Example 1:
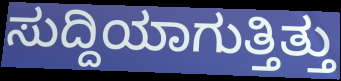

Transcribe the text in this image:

ಸುದ್ದಿಯಾಗುತ್ತಿತ್ತು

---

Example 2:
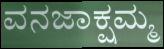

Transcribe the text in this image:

ವನಜಾಕ್ಷಮ್ಮ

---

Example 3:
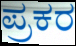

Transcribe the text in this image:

ಪ್ರಕರ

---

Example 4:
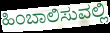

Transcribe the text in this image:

ಹಿಂಬಾಲಿಸುವಲ್ಲಿ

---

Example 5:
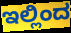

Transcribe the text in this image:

ಇಲ್ಲಿಂದ